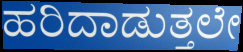
ಹರಿದಾಡುತ್ತಲೇ